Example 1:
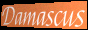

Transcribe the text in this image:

Damascus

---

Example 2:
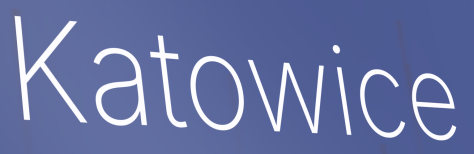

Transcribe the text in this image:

Katowice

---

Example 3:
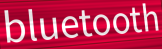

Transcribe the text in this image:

bluetooth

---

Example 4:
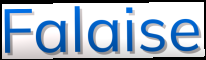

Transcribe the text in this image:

Falaise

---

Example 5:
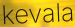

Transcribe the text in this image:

kevala